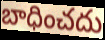
బాధించదు